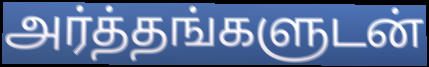
அர்த்தங்களுடன்